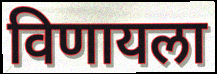
विणायला